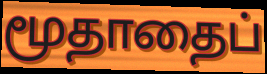
மூதாதைப்